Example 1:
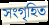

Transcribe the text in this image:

সংগৃহিত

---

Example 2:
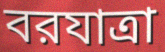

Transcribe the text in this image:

বরযাত্রা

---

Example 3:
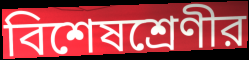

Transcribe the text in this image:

বিশেষশ্রেণীর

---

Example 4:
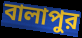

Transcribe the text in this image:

বালাপুর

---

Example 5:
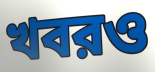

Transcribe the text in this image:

খবরও